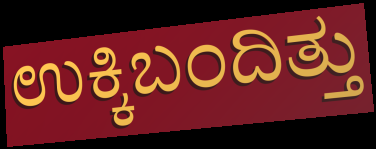
ಉಕ್ಕಿಬಂದಿತ್ತು